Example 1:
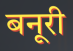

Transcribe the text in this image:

बनूरी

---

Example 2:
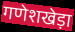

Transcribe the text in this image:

गणेशखेड़ा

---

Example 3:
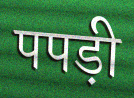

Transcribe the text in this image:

पपड़ी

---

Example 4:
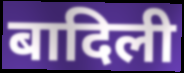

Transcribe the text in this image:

बादिली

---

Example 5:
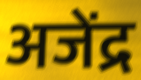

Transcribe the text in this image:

अजेंद्र